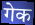
गेक